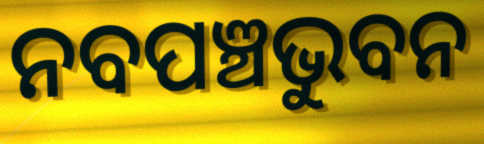
ନବପଞ୍ଚଭୁବନ